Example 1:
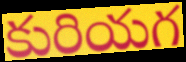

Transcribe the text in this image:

కురియగ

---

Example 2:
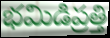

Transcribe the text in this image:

భమిడిప్రత్తి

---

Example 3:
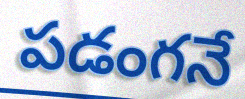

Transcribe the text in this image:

పడంగనే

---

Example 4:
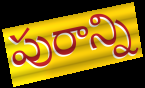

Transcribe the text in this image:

పురాన్ని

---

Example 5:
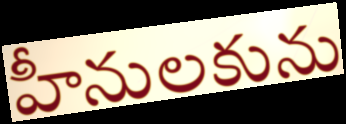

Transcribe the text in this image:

హీనులకును